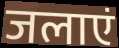
जलाएं